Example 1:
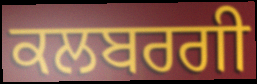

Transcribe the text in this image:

ਕਲਬਰਗੀ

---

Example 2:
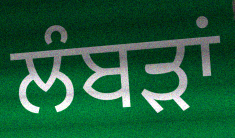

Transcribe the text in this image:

ਲੰਬੜਾਂ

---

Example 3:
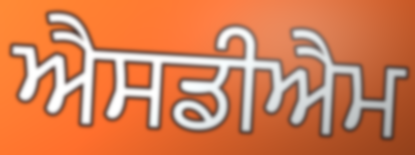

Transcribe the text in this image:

ਐਸਡੀਐਮ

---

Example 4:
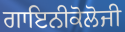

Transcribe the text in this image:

ਗਾਇਨੀਕੋਲੋਜੀ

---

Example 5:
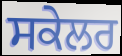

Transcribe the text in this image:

ਸਕੇਲਰ